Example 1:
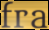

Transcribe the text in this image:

fra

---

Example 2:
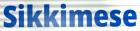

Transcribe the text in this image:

Sikkimese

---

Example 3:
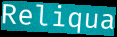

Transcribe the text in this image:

Reliqua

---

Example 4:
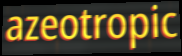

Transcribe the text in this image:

azeotropic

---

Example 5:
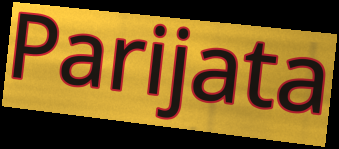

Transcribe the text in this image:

Parijata